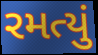
રમત્યું